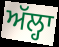
ਅੱਲ੍ਹਾ